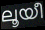
ലൂയീ